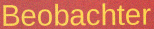
Beobachter